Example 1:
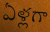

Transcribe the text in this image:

ఏళ్లగా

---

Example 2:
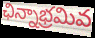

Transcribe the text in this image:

ఛిన్నాభ్రమివ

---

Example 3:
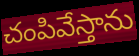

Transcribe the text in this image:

చంపివేస్తాను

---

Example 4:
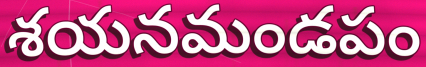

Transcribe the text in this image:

శయనమండపం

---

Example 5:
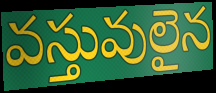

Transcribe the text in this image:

వస్తువులైన